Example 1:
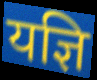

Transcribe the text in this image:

यज्ञि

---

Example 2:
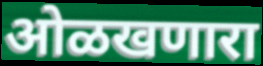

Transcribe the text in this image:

ओळखणारा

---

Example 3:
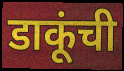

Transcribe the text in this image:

डाकूंची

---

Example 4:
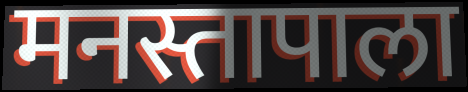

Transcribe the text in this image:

मनस्तापाला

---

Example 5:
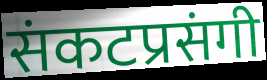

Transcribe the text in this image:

संकटप्रसंगी